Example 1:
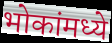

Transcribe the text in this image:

भोकांमध्ये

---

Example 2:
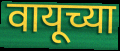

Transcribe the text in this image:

वायूच्या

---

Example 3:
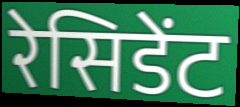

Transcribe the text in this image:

रेसिडेंट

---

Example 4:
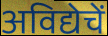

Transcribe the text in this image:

अविद्येचें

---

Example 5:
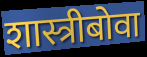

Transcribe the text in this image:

शास्त्रीबोवा